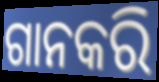
ଗାନକରି